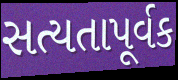
સત્યતાપૂર્વક